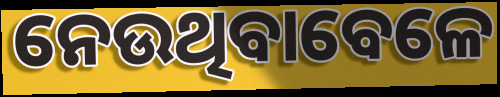
ନେଉଥିବାବେଳେ